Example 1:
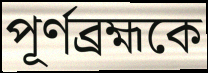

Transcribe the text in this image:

পূর্ণব্রহ্মকে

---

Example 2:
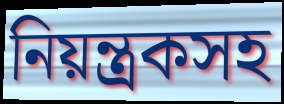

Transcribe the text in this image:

নিয়ন্ত্রকসহ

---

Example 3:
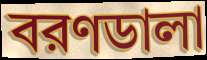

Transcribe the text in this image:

বরণডালা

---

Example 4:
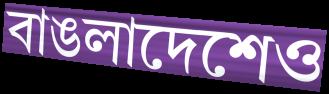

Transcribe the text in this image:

বাঙলাদেশেও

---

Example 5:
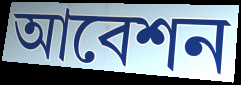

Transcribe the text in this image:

আবেশন